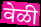
वेळी